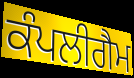
ਕੰਪਲੀਗੈਮ